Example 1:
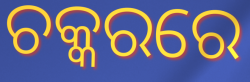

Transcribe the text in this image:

ଚକ୍କରରେ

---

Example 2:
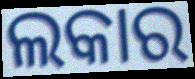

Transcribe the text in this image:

ଲକାର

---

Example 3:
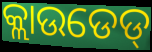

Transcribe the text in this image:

କ୍ଲାଉଡେଡ୍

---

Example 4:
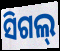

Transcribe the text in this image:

ସିଗଲ୍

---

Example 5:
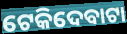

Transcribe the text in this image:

ଟେକିଦେବାଟା